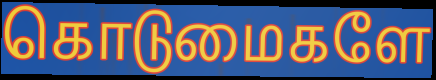
கொடுமைகளே